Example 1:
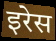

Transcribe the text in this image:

इरेस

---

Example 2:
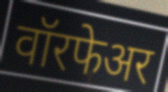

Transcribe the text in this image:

वॉरफेअर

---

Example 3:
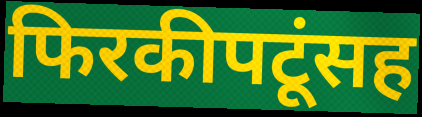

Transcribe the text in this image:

फिरकीपटूंसह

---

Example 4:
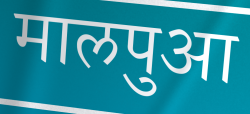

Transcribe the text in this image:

मालपुआ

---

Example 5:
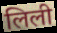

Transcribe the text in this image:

लिली